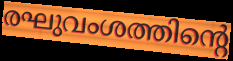
രഘുവംശത്തിന്റെ